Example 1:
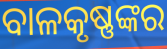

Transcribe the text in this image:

ବାଳକୃଷ୍ଣଙ୍କର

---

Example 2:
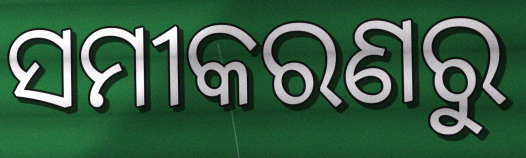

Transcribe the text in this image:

ସମୀକରଣରୁ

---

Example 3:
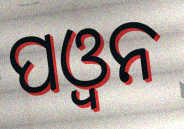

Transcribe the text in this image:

ପଓ୍ବନ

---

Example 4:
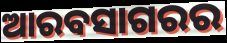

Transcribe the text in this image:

ଆରବସାଗରର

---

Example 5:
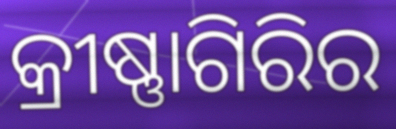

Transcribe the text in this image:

କ୍ରୀଷ୍ଣାଗିରିର